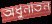
অধুনাতন